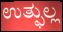
ಉತ್ಫುಲ್ಲ